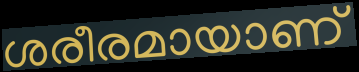
ശരീരമായാണ്